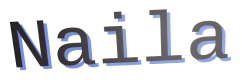
Naila